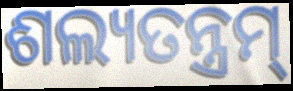
ଶଲ୍ୟତନ୍ତ୍ରମ୍